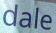
dale